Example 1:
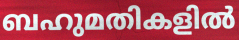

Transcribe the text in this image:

ബഹുമതികളിൽ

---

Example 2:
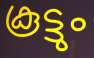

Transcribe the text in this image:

കൂട്ടും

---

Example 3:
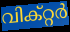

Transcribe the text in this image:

വിക്റ്റർ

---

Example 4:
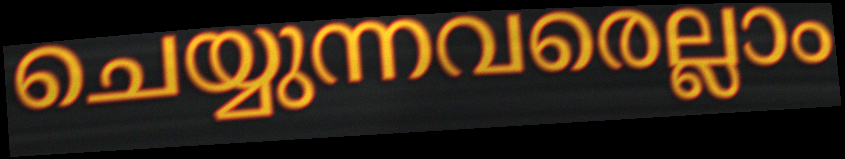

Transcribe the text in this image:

ചെയ്യുന്നവരെല്ലാം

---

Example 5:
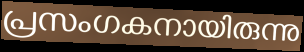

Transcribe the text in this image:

പ്രസംഗകനായിരുന്നു